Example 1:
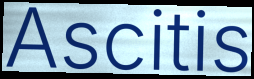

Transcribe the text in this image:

Ascitis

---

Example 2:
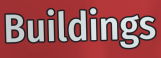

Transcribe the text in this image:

Buildings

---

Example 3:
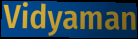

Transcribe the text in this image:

Vidyaman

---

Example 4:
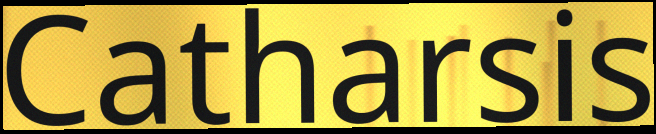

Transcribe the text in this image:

Catharsis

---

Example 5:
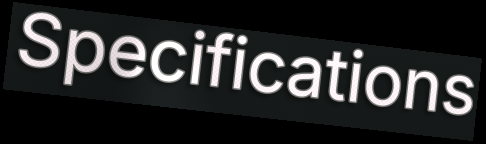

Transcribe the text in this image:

Specifications